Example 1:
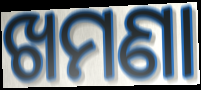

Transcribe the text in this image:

ଖମଣା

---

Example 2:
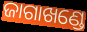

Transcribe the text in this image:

ଜାଗାଖଣ୍ଡେ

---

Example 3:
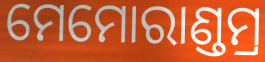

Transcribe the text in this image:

ମେମୋରାଣ୍ଡମ୍ର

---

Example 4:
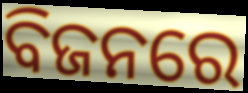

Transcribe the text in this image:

ବିଜନରେ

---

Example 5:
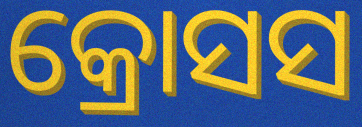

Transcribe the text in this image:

କ୍ରୋସସ